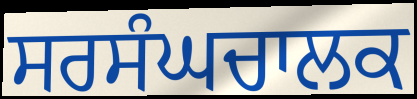
ਸਰਸੰਘਚਾਲਕ